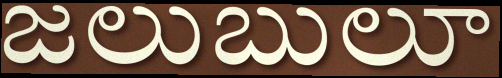
జలుబులూ